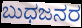
ಬುಧಜನರ